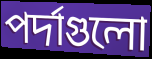
পর্দাগুলো